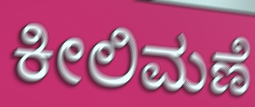
ಕೀಲಿಮಣೆ